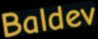
Baldev